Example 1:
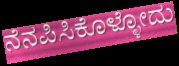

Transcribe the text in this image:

ನೆನಪಿಸಿಕೊಳ್ಳೋದು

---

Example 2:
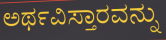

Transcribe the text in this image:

ಅರ್ಥವಿಸ್ತಾರವನ್ನು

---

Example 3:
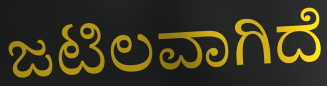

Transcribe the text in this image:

ಜಟಿಲವಾಗಿದೆ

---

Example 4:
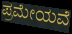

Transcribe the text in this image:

ಪ್ರಮೇಯವೆ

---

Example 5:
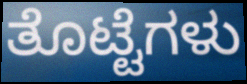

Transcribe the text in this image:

ತೊಟ್ಟೆಗಳು